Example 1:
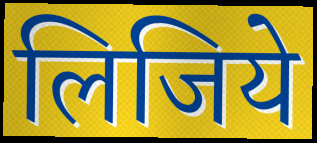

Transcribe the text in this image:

लिजिये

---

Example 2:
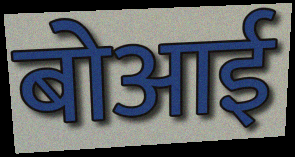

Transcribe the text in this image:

बोआई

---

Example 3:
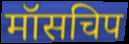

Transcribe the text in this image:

मॉसचिप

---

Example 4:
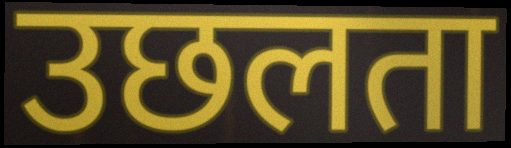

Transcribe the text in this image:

उछलता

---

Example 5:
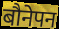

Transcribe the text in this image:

बौनेपन